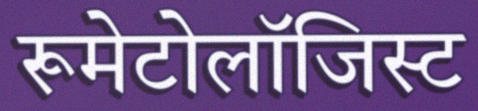
रूमेटोलॉजिस्ट